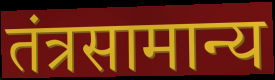
तंत्रसामान्य